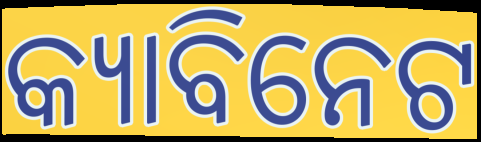
କ୍ୟାବିନେଟ